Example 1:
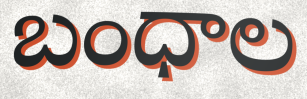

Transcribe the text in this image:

బంధాల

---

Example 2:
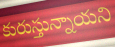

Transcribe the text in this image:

కురుస్తున్నాయని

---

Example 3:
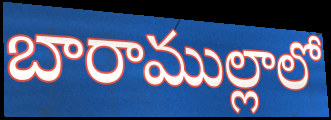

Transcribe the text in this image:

బారాముల్లాలో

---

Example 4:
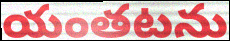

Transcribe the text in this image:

యంతటను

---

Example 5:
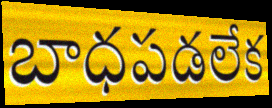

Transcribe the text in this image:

బాధపడలేక